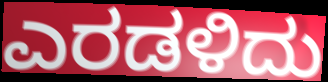
ಎರಡಳಿದು